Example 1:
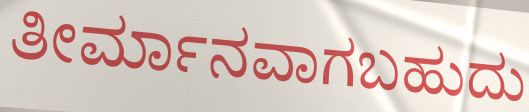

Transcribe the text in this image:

ತೀರ್ಮಾನವಾಗಬಹುದು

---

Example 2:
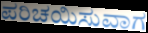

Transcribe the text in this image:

ಪರಿಚಯಿಸುವಾಗ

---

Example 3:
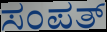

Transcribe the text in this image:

ಸಂಪತ್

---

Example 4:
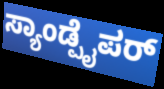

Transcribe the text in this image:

ಸ್ಯಾಂಡ್ಪೈಪರ್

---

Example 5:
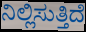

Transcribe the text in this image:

ನಿಲ್ಲಿಸುತ್ತಿದೆ